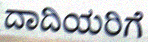
ದಾದಿಯರಿಗೆ